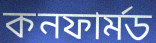
কনফার্মড